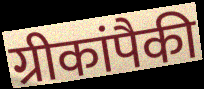
ग्रीकांपैकी